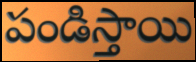
పండిస్తాయి